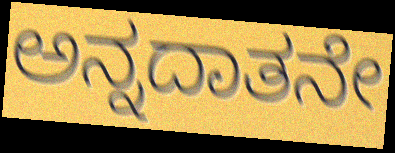
ಅನ್ನದಾತನೇ